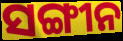
ସଙ୍ଗୀନ